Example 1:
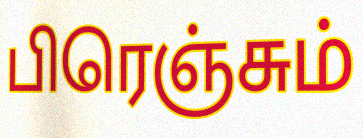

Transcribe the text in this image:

பிரெஞ்சும்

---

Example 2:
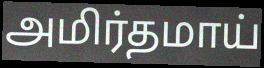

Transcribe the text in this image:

அமிர்தமாய்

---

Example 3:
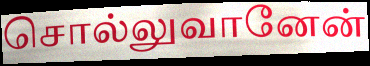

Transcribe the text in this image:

சொல்லுவானேன்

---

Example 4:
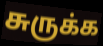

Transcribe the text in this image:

சுருக்க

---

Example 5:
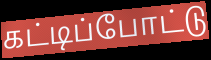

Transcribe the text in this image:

கட்டிப்போட்டு